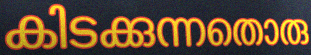
കിടക്കുന്നതൊരു